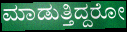
ಮಾಡುತ್ತಿದ್ದರೋ